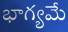
భాగ్యమే